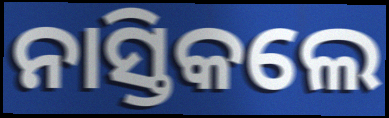
ନାସ୍ତିକଲେ